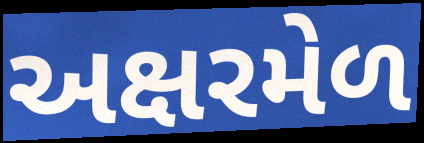
અક્ષરમેળ